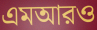
এমআরও